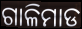
ଗାଳିମାଡ